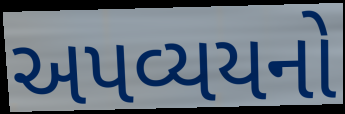
અપવ્યયનો